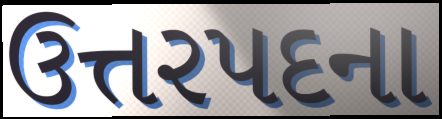
ઉત્તરપદના